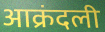
आक्रंदली